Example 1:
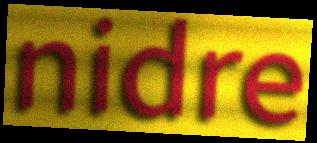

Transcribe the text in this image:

nidre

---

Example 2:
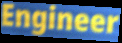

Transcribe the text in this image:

Engineer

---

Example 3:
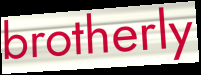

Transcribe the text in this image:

brotherly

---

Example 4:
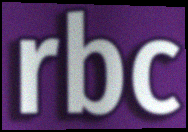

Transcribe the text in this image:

rbc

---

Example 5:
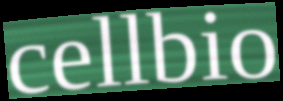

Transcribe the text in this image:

cellbio